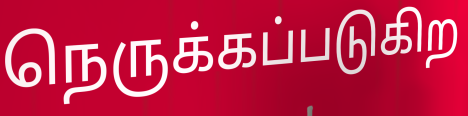
நெருக்கப்படுகிற